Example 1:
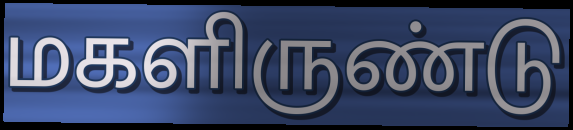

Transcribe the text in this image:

மகளிருண்டு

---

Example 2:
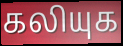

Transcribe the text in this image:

கலியுக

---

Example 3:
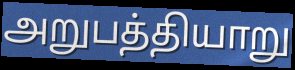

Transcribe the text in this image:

அறுபத்தியாறு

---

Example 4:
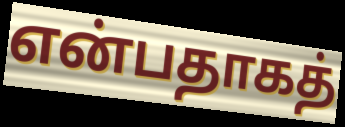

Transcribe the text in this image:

என்பதாகத்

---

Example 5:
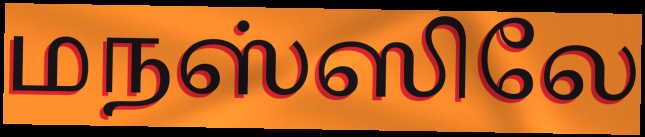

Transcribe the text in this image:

மநஸ்ஸிலே